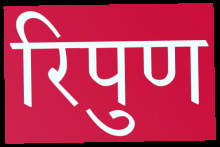
रिपुण